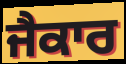
ਜੈਕਾਰ